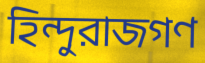
হিন্দুরাজগণ